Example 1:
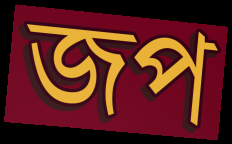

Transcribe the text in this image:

জপ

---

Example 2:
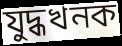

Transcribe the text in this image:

যুদ্ধখনক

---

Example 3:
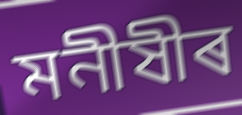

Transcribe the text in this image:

মনীষীৰ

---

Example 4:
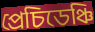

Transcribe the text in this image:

প্ৰেচিডেঞ্চি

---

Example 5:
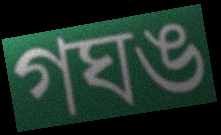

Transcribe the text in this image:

গঘঙ